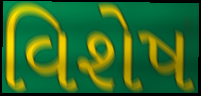
વિશેષ